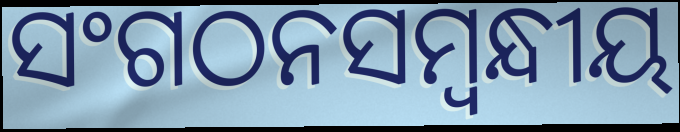
ସଂଗଠନସମ୍ବନ୍ଧୀୟ